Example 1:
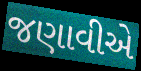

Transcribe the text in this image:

જણાવીએ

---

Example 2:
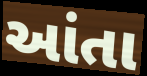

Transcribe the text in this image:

આંતા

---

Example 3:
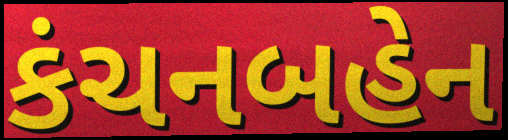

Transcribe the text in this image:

કંચનબહેન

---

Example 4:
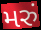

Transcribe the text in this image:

મરું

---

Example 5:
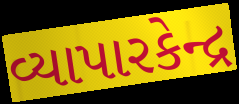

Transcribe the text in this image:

વ્યાપારકેન્દ્ર